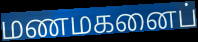
மணமகனைப்